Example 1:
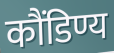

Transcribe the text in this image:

कौंडिण्य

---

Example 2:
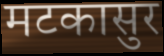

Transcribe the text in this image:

मटकासुर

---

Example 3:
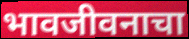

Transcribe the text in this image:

भावजीवनाचा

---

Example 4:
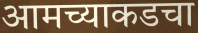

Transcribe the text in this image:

आमच्याकडचा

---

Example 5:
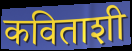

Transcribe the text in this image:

कविताशी